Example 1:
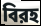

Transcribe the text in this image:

বিরহ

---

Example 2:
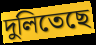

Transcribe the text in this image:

দুলিতেছে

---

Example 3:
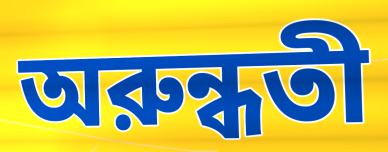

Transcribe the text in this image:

অরুন্ধতী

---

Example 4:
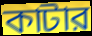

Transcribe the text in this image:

কাটার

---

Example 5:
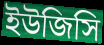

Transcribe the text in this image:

ইউজিসি